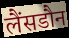
लैंसडौन